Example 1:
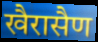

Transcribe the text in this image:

खैरासैण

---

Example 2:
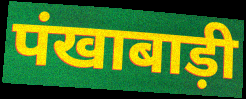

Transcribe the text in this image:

पंखाबाड़ी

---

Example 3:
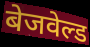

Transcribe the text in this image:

बेजवेल्ड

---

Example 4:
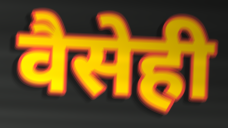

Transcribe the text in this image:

वैसेही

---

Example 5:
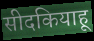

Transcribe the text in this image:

सीदकियाहू